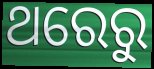
ଥରେରୁ